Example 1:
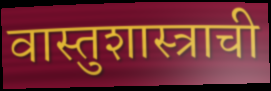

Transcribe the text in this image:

वास्तुशास्त्राची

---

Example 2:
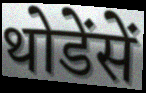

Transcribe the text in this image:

थोडेंसें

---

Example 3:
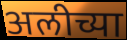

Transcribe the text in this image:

अलीच्या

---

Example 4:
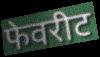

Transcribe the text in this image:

फेवरीट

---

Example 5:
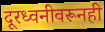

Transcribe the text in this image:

दूरध्वनीवरूनही